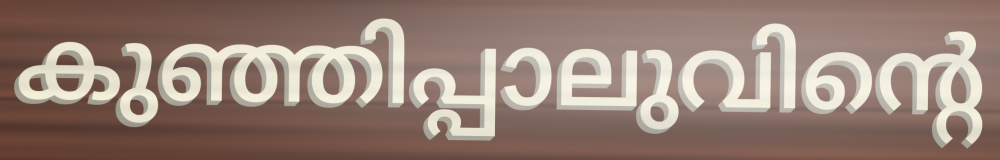
കുഞ്ഞിപ്പാലുവിന്റെ